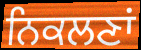
ਨਿਕਲਣਾਂ